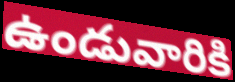
ఉండువారికి